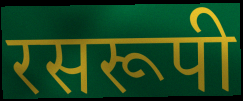
रसरूपी